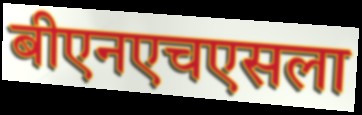
बीएनएचएसला